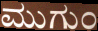
ಮುಗುಂ